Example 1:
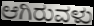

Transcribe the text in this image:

ಆಗಿರುವಳು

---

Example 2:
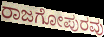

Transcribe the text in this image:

ರಾಜಗೋಪುರವು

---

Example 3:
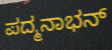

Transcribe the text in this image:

ಪದ್ಮನಾಭನ್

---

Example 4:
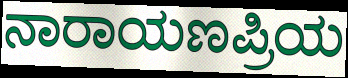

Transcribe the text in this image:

ನಾರಾಯಣಪ್ರಿಯ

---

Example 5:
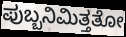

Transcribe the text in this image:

ಪುಬ್ಬನಿಮಿತ್ತತೋ